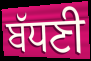
ਬੱਧਣੀ